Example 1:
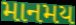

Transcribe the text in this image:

માનમય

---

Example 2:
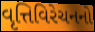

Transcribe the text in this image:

વૃત્તિવિરેચનનો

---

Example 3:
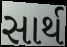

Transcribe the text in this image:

સાર્થ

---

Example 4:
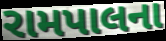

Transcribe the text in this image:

રામપાલના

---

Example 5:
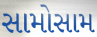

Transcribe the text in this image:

સામોસામ